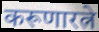
करूणारत्ने